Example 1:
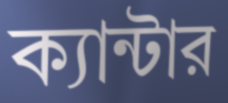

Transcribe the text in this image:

ক্যান্টার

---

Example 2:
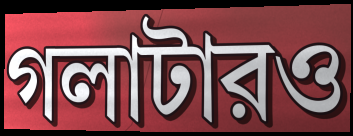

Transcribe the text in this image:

গলাটারও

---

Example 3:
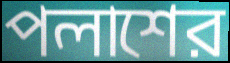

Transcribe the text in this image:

পলাশের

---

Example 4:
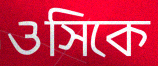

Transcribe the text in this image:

ওসিকে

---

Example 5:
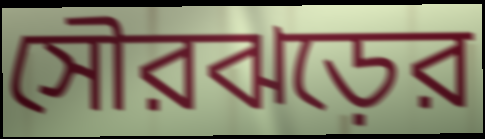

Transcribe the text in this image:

সৌরঝড়ের